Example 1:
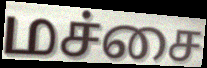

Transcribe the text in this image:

மச்சை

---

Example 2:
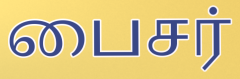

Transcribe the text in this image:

பைசர்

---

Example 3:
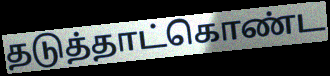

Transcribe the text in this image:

தடுத்தாட்கொண்ட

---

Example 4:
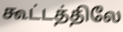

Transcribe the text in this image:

கூட்டத்திலே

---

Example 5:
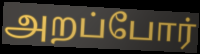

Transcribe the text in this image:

அறப்போர்